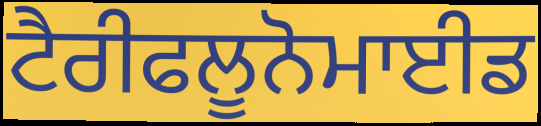
ਟੈਰੀਫਲੂਨੋਮਾਈਡ